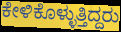
ಕೇಳಿಕೊಳ್ಳುತ್ತಿದ್ದರು